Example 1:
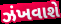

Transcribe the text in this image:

ઝંખવાશે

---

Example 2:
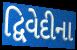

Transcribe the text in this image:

દ્વિવેદીના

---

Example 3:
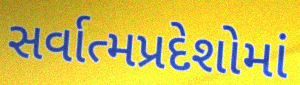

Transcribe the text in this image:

સર્વાત્મપ્રદેશોમાં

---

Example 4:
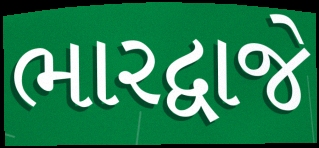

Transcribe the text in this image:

ભારદ્વાજે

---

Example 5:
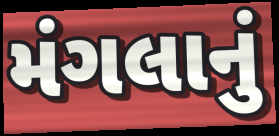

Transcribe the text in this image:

મંગલાનું